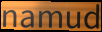
namud